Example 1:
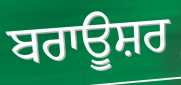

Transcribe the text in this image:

ਬਰਾਊਸ਼ਰ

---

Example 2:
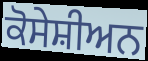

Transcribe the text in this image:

ਕੋਸੇਸ਼ੀਅਨ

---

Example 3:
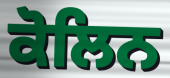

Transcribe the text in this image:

ਕੋਲਿਨ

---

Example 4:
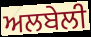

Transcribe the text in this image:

ਅਲਬੇਲੀ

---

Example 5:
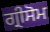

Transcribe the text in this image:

ਗ੍ਰੀਸੋਮ